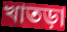
খাতড়া